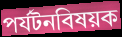
পর্যটনবিষয়ক